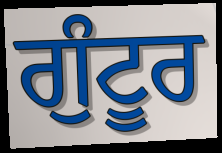
ਗੁੰਟੂਰ